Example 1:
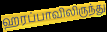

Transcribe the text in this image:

ஹரப்பாவிலிருந்து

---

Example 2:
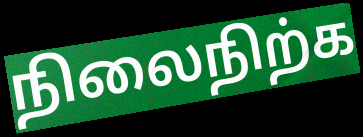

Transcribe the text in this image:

நிலைநிற்க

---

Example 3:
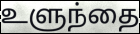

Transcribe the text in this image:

உளுந்தை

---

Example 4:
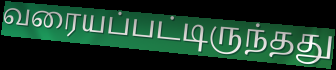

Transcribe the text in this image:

வரையப்பட்டிருந்தது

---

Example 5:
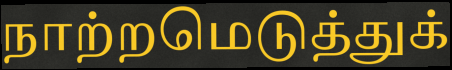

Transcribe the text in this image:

நாற்றமெடுத்துக்